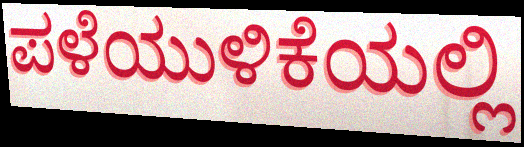
ಪಳೆಯುಳಿಕೆಯಲ್ಲಿ